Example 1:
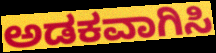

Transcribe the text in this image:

ಅಡಕವಾಗಿಸಿ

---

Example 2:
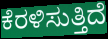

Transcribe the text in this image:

ಕೆರಳಿಸುತ್ತಿದೆ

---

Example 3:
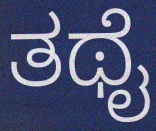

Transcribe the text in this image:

ತಥೈ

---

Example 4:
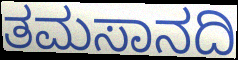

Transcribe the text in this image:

ತಮಸಾನದಿ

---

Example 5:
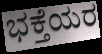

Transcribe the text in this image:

ಭಕ್ತೆಯರ